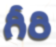
గీరి